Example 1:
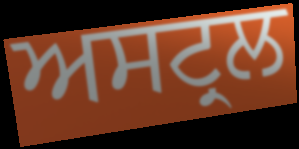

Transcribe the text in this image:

ਅਸਟ੍ਰਲ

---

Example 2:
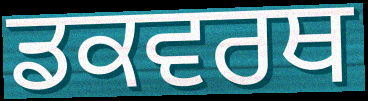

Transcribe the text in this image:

ਡਕਵਰਥ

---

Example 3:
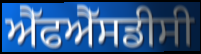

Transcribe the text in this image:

ਐੱਫਐੱਸਡੀਸੀ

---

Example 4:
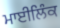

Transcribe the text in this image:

ਮਾਈਲਿੰਕ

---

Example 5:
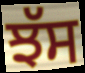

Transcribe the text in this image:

ਝੱਸ